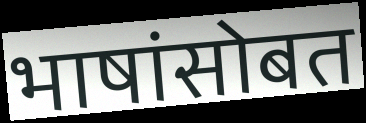
भाषांसोबत